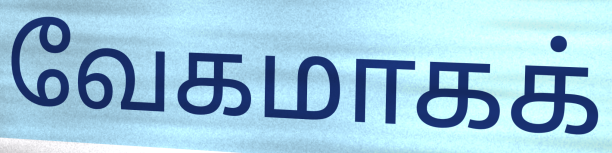
வேகமாகக்